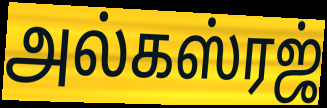
அல்கஸ்ரஜ்